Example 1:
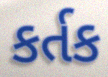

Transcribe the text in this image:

કર્તક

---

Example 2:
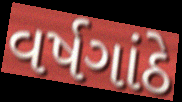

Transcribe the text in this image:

વર્ષગાંઠે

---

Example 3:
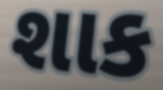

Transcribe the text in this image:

શાક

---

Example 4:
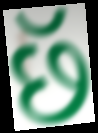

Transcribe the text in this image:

છૅ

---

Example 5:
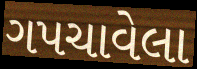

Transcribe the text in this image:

ગપચાવેલા